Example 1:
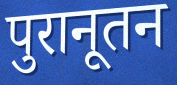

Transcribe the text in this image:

पुरानूतन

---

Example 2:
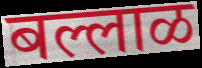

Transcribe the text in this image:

बल्लाळ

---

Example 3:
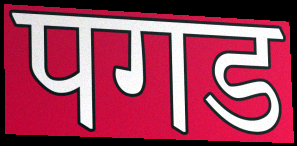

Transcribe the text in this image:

पगड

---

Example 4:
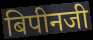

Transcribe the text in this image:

बिपीनजी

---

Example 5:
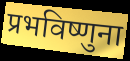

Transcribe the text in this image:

प्रभविष्णुना